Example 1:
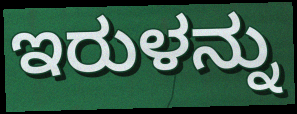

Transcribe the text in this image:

ಇರುಳನ್ನು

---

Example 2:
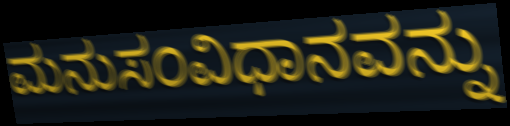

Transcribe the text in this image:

ಮನುಸಂವಿಧಾನವನ್ನು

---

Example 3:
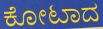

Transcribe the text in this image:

ಕೋಟಾದ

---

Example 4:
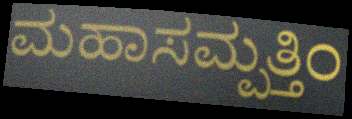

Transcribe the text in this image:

ಮಹಾಸಮ್ಪತ್ತಿಂ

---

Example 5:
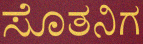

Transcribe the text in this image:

ಸೊತನಿಗ